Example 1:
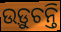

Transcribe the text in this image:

ଉଡ଼ୁଚନ୍ତି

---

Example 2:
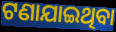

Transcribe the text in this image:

ଟଣାଯାଇଥିବା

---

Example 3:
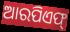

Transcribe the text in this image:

ଆରପିଏଫ୍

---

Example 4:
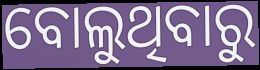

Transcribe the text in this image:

ବୋଲୁଥିବାରୁ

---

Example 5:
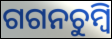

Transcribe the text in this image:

ଗଗନଚୁମ୍ବି